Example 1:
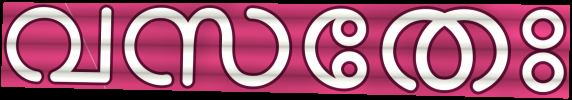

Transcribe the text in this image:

വസതേഃ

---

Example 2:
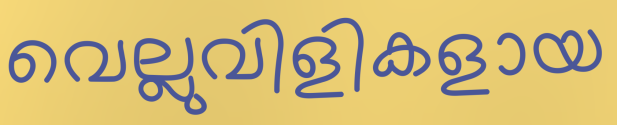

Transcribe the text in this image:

വെല്ലുവിളികളായ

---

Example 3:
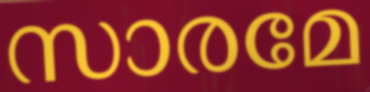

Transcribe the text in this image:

സാരമേ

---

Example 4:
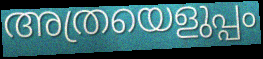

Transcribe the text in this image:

അത്രയെളുപ്പം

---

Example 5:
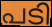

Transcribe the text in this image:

പടി